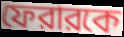
ফেরারকে